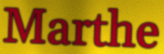
Marthe